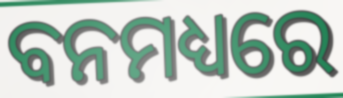
ବନମଧ୍ୟରେ